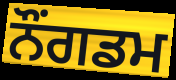
ਨੌਂਗਡਮ